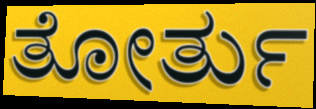
ತೋರ್ತು